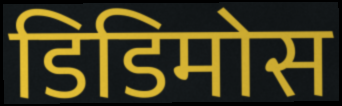
डिडिमोस